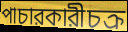
পাচারকারীচক্র